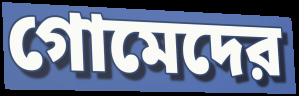
গোমেদের